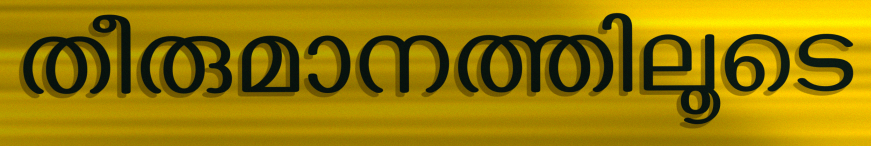
തീരുമാനത്തിലൂടെ